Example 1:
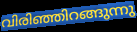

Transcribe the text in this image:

വിരിഞ്ഞിറങ്ങുന്നു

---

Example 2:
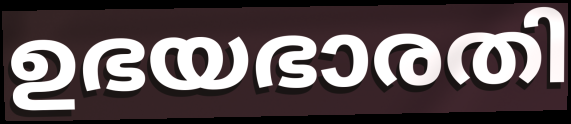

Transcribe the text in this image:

ഉഭയഭാരതി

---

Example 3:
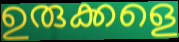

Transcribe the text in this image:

ഉരുക്കളെ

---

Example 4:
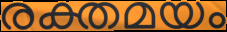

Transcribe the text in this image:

രക്തമയം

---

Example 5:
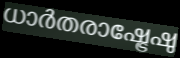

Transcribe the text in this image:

ധാർതരാഷ്ട്രേഷു